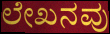
ಲೇಖನವು